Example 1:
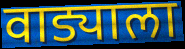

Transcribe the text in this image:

वाड्याला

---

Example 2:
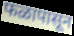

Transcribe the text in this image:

फळापासून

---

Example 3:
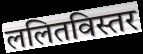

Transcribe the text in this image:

ललितविस्तर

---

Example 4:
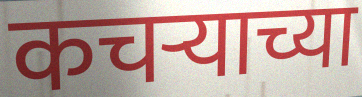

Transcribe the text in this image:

कचर्‍याच्या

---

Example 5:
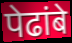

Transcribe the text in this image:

पेढांबे